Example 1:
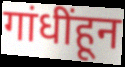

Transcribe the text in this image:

गांधींहून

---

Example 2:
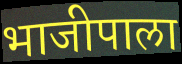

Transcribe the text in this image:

भाजीपाला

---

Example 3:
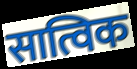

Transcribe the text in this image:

सात्विक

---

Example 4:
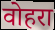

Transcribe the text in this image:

वोहरा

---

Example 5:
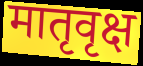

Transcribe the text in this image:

मातृवृक्ष